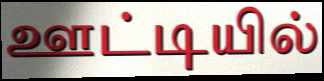
ஊட்டியில்